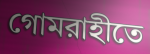
গোমরাহীতে